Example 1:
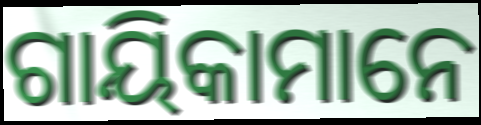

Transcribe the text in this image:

ଗାୟିକାମାନେ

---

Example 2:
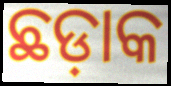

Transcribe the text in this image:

ଛଡ଼ାକ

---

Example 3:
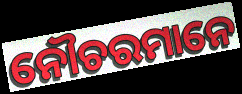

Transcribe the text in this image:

ନୌଚରମାନେ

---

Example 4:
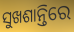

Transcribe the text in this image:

ସୁଖଶାନ୍ତିରେ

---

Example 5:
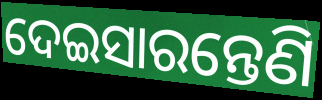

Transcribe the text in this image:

ଦେଇସାରନ୍ତେଣି